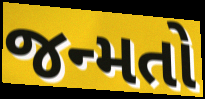
જન્મતો